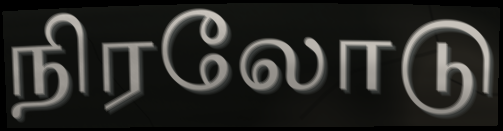
நிரலோடு